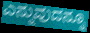
ಎನ್ನುವುದನ್ನೂ